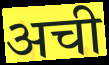
अची